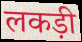
लकड़ी